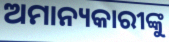
ଅମାନ୍ୟକାରୀଙ୍କୁ